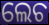
ଲେଚ